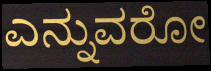
ಎನ್ನುವರೋ